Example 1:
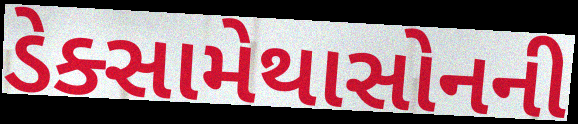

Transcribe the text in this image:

ડેક્સામેથાસોનની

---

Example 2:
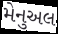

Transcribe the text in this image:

મેનુઅલ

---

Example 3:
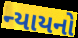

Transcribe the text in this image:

ન્યાયનો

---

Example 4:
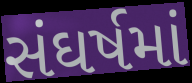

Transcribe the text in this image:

સંઘર્ષમાં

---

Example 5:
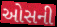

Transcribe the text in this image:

ઓસની